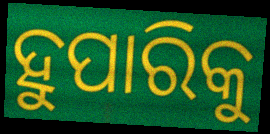
ହୁପାରିକୁ